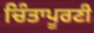
ਚਿੰਤਾਪੂਰਣੀ